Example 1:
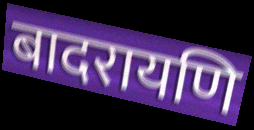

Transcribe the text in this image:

बादरायणि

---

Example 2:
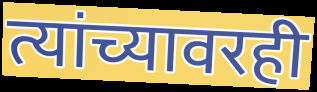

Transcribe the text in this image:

त्यांच्यावरही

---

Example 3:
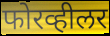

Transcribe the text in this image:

फोरव्हीलर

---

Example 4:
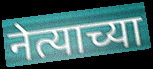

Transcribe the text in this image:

नेत्याच्या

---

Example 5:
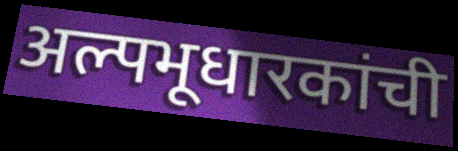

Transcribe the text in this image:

अल्पभूधारकांची